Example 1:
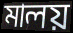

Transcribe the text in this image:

মালয়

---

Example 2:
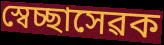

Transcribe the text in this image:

স্বেচ্ছাসেৱক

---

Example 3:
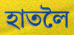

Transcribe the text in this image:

হাতলৈ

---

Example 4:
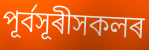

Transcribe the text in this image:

পূৰ্বসূৰীসকলৰ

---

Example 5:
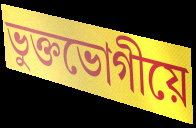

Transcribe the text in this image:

ভুক্তভোগীয়ে